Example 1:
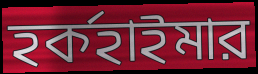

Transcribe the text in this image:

হর্কহাইমার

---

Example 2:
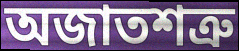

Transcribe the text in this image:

অজাতশত্রু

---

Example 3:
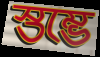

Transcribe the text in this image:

স্তম্ভে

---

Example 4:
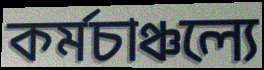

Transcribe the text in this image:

কর্মচাঞ্চল্যে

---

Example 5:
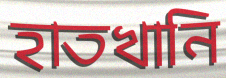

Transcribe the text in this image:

হাতখানি